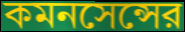
কমনসেন্সের